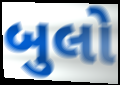
બુલો